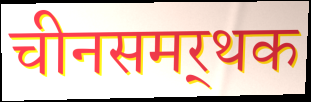
चीनसमर्थक